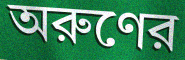
অরুণের